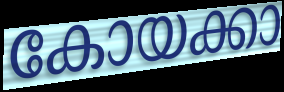
കോയക്കാ